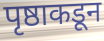
पृष्ठाकडून